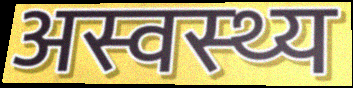
अस्वस्थ्य